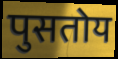
पुसतोय